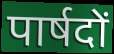
पार्षदों